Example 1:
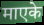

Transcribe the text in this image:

माएके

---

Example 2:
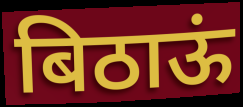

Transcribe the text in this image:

बिठाऊं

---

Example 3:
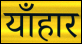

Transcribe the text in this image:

याँहार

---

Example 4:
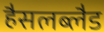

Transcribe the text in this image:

हैसलब्लैड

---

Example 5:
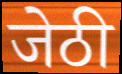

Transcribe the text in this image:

जेठी